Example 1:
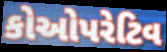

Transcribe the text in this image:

કોઓપરેટિવ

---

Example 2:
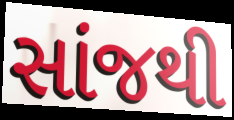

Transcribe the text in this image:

સાંજથી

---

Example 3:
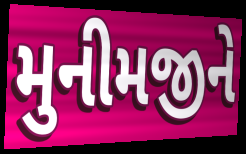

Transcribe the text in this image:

મુનીમજીને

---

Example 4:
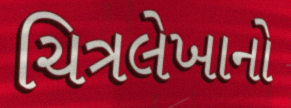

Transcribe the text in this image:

ચિત્રલેખાનો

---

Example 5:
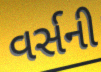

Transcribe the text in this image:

વર્સની